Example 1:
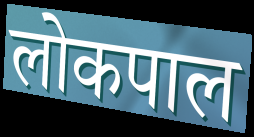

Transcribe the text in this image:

लोकपाल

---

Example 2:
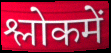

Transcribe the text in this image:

श्लोकमें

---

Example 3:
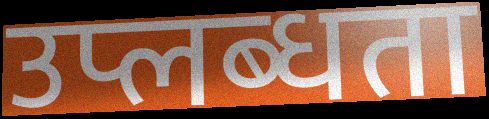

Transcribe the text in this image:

उप्लब्धता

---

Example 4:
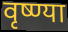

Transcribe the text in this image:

वृष्ण्या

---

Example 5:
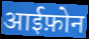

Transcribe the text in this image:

आईफ़ोन